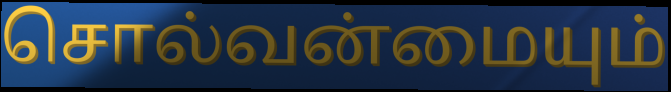
சொல்வன்மையும்